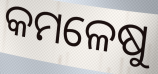
କମଳେଷୁ